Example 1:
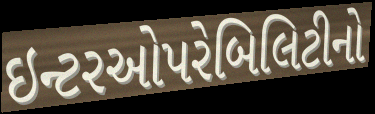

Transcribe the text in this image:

ઇન્ટરઓપરેબિલિટીનો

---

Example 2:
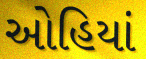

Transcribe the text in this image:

ઓહિયાં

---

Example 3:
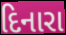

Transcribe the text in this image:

દિનારા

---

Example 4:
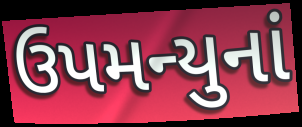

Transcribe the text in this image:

ઉપમન્યુનાં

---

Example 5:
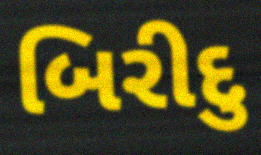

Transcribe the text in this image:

બિરીદુ